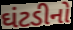
ઘંટડીનો